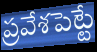
ప్రవేశపెట్టే